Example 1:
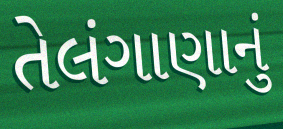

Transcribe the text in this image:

તેલંગાણાનું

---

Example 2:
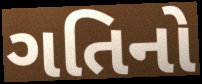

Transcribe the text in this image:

ગતિનો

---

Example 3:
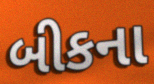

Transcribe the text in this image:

બીકના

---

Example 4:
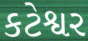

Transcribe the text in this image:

કટેશ્વર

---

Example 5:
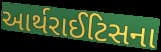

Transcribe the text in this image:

આર્થરાઈટિસના